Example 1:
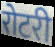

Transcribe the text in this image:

रोटरी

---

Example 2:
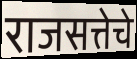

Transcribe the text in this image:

राजसत्तेचे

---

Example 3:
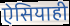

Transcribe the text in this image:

ऐसियाही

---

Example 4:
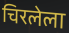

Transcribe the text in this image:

चिरलेला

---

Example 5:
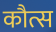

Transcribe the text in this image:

कौत्स